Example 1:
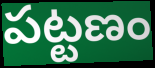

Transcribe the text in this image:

పట్టణం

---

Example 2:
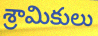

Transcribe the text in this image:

శ్రామికులు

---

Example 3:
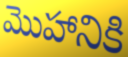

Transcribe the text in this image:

మొహానికి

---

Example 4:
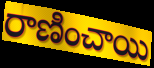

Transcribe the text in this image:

రాణించాయి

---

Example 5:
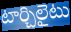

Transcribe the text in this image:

టార్చిలైటు